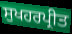
ਸੁਖਹਰਪ੍ਰੀਤ